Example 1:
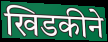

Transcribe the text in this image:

खिडकीने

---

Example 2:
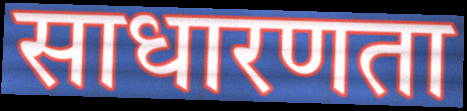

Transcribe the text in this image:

साधारणता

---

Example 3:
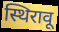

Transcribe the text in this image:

स्थिरावू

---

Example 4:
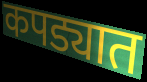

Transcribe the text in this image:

कपड्यात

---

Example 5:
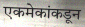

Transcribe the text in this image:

एकमेकांकडून